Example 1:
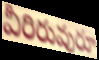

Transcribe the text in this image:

వీరిరువురూ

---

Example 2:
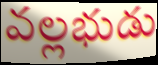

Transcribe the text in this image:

వల్లభుడు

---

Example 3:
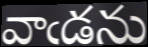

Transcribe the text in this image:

వాఁడను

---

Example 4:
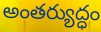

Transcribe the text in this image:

అంతర్యుద్ధం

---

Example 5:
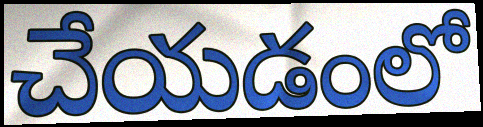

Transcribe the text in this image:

చేయడంలో